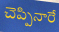
చెప్పినారే